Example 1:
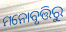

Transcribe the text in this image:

ମନୋବୃତ୍ତିରୁ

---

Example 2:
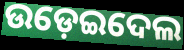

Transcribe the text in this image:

ଉଡ଼େଇଦେଲ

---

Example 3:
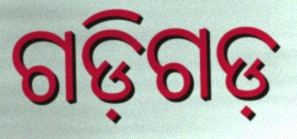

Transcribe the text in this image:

ଗଡ଼ିଗଡ଼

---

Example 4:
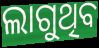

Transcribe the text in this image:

ଲାଗୁଥିବ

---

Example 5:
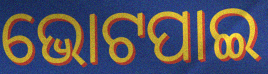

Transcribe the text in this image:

ଭୋଟପାଇ